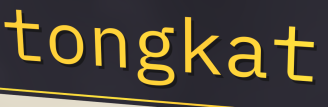
tongkat